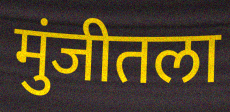
मुंजीतला